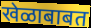
खेळाबाबत